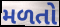
મળતો